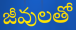
జీవులతో